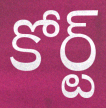
కోర్ట్